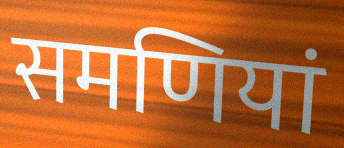
समणियां